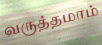
வருத்தமாம்